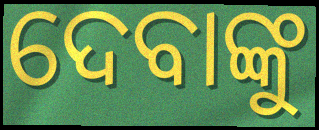
ଦେବାଙ୍କୁ